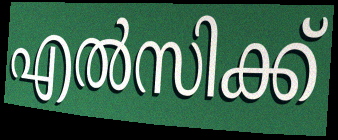
എൽസിക്ക്